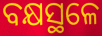
ବକ୍ଷସ୍ଥଳେ